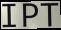
IPT